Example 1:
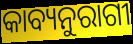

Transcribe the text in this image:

କାବ୍ୟନୁରାଗୀ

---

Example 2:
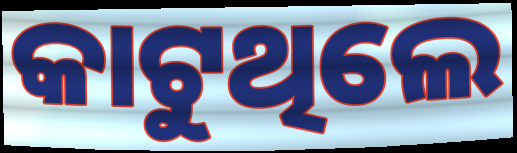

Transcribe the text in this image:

କାଟୁଥିଲେ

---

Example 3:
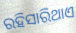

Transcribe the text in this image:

ରହିସାରିଥାଏ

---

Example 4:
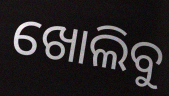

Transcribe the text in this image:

ଖୋଲିବୁ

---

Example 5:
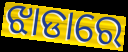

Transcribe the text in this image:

ଝାଡାରେ